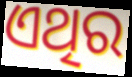
ଏଥିର